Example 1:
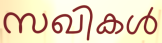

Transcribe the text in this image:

സഖികൾ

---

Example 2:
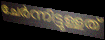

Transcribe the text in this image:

ചേർന്നിട്ടുള്ളത്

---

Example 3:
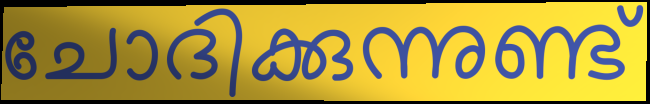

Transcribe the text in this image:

ചോദിക്കുന്നുണ്ട്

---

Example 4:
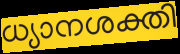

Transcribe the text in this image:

ധ്യാനശക്തി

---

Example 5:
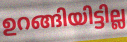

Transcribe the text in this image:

ഉറങ്ങിയിട്ടില്ല